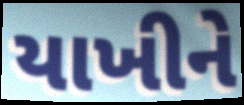
યાખીને